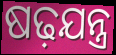
ଷଢ଼ଯନ୍ତ୍ର